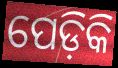
ପେଡ଼ିକି